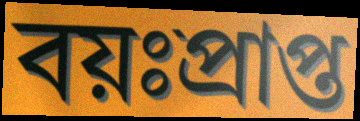
বয়ঃপ্রাপ্ত